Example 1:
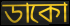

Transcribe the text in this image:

ডাকো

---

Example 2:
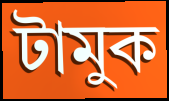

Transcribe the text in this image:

টামুক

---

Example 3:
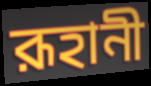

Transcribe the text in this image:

রূহানী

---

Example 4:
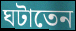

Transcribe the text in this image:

ঘটাতেন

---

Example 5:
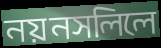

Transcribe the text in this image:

নয়নসলিলে